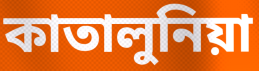
কাতালুনিয়া